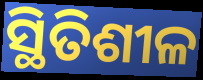
ସ୍ଥିତିଶୀଳ